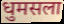
धुमसला